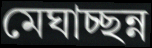
মেঘাচ্ছন্ন